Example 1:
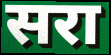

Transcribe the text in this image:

सरा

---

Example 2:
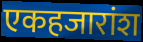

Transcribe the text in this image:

एकहजारांश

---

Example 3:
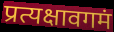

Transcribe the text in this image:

प्रत्यक्षावगमं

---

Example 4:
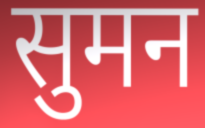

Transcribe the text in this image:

सुमन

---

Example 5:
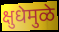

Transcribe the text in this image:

क्षुधेमुळे